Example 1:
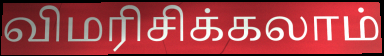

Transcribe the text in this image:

விமரிசிக்கலாம்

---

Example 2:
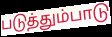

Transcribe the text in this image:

படுத்தும்பாடு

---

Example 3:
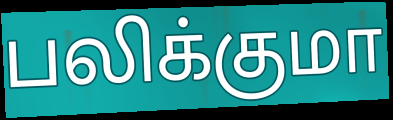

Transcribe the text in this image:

பலிக்குமா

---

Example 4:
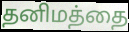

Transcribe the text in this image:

தனிமத்தை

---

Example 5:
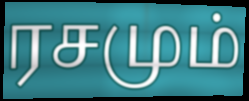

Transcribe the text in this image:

ரசமும்